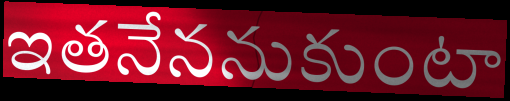
ఇతనేననుకుంటా